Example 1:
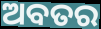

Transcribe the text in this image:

ଅବତର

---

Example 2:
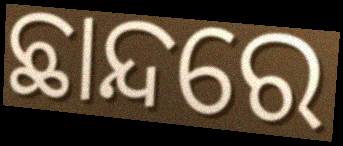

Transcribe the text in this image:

ଛାନ୍ଦରେ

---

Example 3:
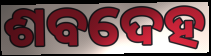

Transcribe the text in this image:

ଶବଦେହ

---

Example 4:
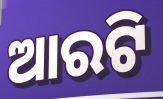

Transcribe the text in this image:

ଆରଟି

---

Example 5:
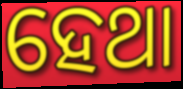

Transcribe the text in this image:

ହେଥା